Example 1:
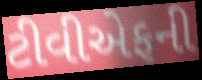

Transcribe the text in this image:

ટીવીએફની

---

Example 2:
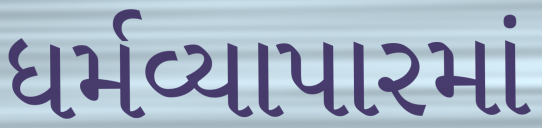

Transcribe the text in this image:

ધર્મવ્યાપારમાં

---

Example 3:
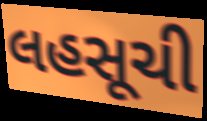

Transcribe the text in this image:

લહસૂચી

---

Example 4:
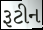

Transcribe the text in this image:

રૂટીન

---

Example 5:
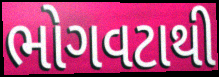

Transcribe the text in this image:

ભોગવટાથી